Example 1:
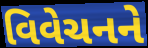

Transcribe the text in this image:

વિવેચનને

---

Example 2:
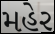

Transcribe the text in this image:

મહેર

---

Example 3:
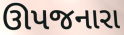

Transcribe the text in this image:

ઊપજનારા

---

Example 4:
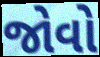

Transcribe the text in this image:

જોવો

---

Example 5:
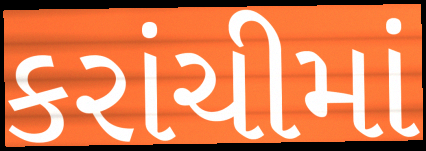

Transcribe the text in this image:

કરાંચીમાં